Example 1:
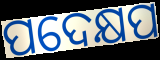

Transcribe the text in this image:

ପଦେକ୍ଷପ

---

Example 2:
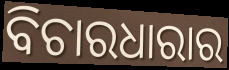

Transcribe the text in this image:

ବିଚାରଧାରାର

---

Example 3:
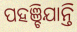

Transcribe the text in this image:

ପହଞ୍ଚିଯାନ୍ତି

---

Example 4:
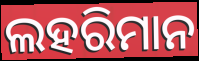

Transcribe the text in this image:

ଲହରିମାନ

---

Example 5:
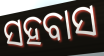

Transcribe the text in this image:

ସହବାସ